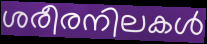
ശരീരനിലകൾ